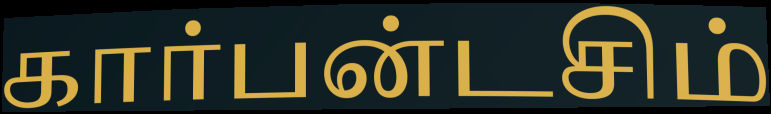
கார்பன்டசிம்